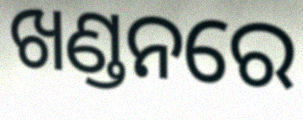
ଖଣ୍ଡନରେ